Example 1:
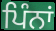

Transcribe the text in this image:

ਪਿੰਨਾਂ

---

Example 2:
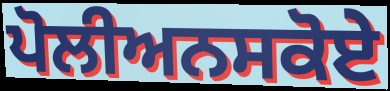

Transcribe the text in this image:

ਪੋਲੀਅਨਸਕੋਏ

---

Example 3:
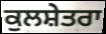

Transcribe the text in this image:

ਕੁਲਸ਼ੇਤਰਾ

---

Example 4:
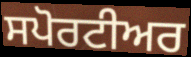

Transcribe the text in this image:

ਸਪੋਰਟੀਅਰ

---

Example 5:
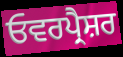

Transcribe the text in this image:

ਓਵਰਪ੍ਰੈਸ਼ਰ